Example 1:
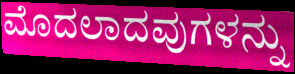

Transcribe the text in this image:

ಮೊದಲಾದವುಗಳನ್ನು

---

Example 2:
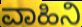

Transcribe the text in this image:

ವಾಹಿನಿ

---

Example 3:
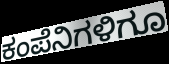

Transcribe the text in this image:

ಕಂಪೆನಿಗಳಿಗೂ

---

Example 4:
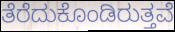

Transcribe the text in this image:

ತೆರೆದುಕೊಂಡಿರುತ್ತವೆ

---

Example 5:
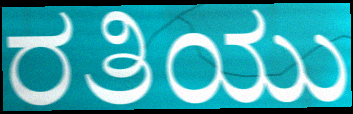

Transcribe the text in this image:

ರತಿಯು